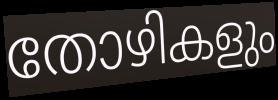
തോഴികളും